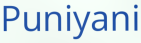
Puniyani